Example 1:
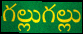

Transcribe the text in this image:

గల్లుగల్లు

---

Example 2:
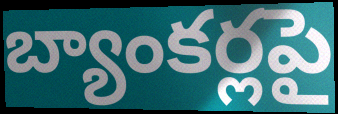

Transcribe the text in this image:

బ్యాంకర్లపై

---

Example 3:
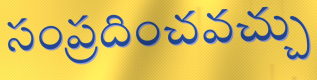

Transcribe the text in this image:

సంప్రదించవచ్చు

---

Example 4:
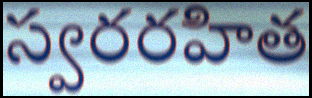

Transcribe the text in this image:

స్వరరహిత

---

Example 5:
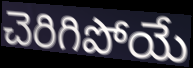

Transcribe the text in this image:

చెరిగిపోయే